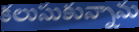
కలుసుకున్నాను